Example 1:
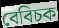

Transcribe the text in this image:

বেবিচক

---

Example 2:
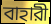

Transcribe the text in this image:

বাহারী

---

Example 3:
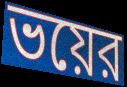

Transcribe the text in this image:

ভয়ের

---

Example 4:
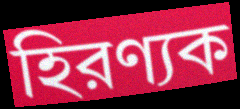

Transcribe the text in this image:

হিরণ্যক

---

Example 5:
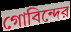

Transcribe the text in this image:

গোবিন্দের